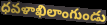
ధవళాఖిలాంగుండు